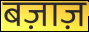
बज़ाज़